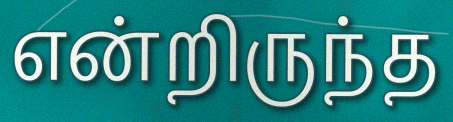
என்றிருந்த